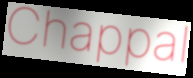
Chappal